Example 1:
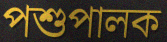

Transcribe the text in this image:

পশুপালক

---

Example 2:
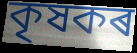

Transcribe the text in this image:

কৃষকৰ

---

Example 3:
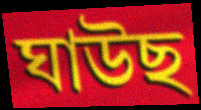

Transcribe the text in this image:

ঘাউছ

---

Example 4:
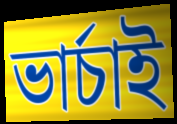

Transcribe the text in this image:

ভাৰ্চাই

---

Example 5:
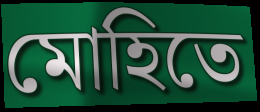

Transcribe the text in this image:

মোহিতে